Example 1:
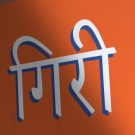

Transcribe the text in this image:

गिरी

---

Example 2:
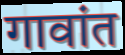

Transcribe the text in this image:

गावांत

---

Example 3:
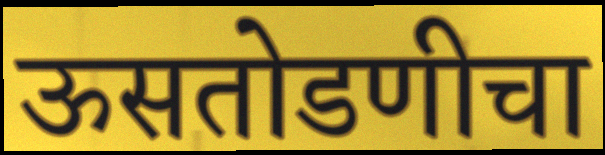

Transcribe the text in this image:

ऊसतोडणीचा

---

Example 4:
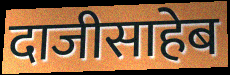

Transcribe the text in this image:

दाजीसाहेब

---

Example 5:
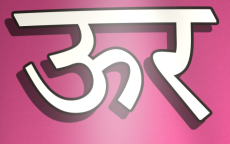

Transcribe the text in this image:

ऊर